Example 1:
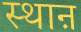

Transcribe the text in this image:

स्थाऩ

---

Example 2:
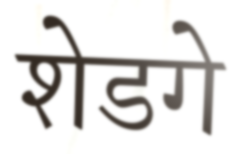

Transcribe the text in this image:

शेडगे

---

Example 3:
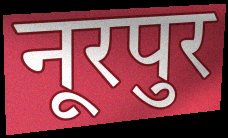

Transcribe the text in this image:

नूरपुर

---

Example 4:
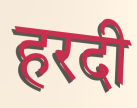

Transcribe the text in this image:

हरदी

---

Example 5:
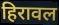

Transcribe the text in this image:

हिरावल